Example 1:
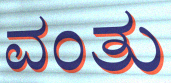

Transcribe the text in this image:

ವಂತು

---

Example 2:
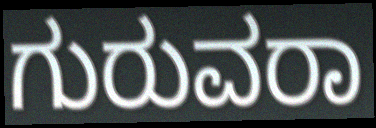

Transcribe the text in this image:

ಗುರುವರಾ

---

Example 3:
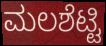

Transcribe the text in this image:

ಮಲಶೆಟ್ಟಿ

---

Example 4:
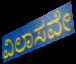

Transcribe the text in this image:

ವಿಲಾಸವೇ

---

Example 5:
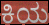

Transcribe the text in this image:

ಕಿಯ